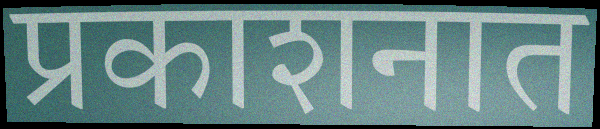
प्रकाशनात